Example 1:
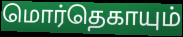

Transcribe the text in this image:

மொர்தெகாயும்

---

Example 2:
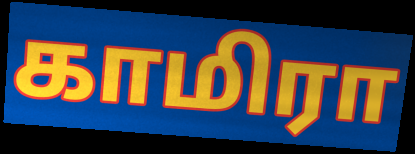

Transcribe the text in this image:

காமிரா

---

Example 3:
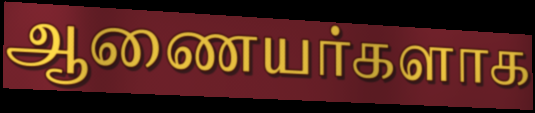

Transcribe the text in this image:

ஆணையர்களாக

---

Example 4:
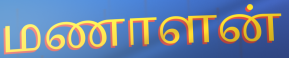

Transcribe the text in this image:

மணாளன்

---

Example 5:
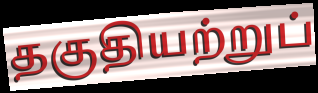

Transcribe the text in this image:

தகுதியற்றுப்